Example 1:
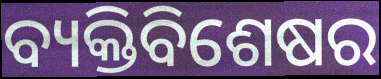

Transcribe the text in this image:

ବ୍ୟକ୍ତିବିଶେଷର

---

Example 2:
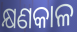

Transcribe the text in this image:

କ୍ଷଣକାଳ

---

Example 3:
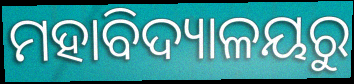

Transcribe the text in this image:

ମହାବିଦ୍ୟାଳୟରୁ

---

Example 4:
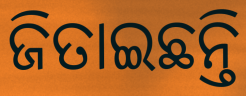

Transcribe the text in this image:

ଜିତାଇଛନ୍ତି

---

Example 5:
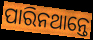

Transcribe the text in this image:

ପାରିନଥାନ୍ତେ